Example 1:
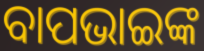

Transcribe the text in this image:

ବାପଭାଇଙ୍କ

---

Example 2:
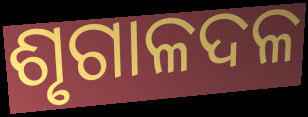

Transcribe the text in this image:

ଶୃଗାଳଦଳ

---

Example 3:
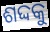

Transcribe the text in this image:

ଶଦ୍ଦକୁ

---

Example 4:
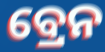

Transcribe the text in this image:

ବ୍ରେନ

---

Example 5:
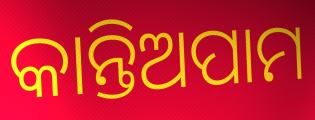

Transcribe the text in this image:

କାନ୍ତିଅପାମ